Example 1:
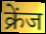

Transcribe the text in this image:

क्रेंज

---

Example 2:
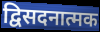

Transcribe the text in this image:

द्विसदनात्मक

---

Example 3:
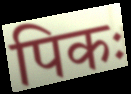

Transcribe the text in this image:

पिकः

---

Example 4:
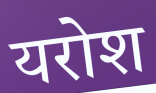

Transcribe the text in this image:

यरोश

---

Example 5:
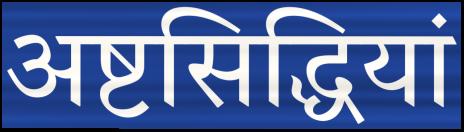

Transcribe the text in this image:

अष्टसिद्धियां